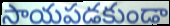
సాయపడకుండా